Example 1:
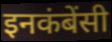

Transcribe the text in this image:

इनकंबेंसी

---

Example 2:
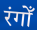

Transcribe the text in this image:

रंगोँ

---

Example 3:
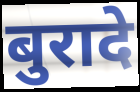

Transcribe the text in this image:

बुरादे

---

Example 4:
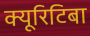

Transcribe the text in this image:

क्यूरिटिबा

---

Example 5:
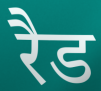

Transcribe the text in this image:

रैड